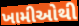
ખામીઓથી